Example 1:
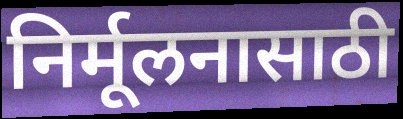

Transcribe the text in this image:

निर्मूलनासाठी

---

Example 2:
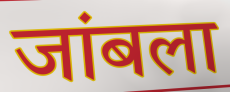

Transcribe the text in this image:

जांबला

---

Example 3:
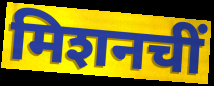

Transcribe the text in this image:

मिशनचीं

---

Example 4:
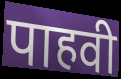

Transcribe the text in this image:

पाहवी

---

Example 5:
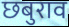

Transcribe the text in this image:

छबुराव